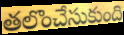
తలొంచేసుకుంది